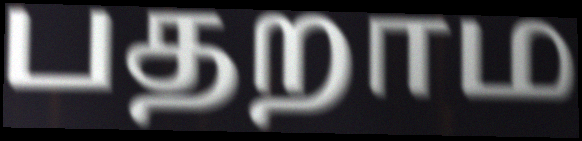
பதறாம